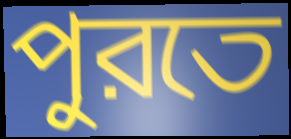
পুরতে